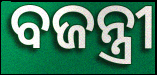
ବଜନ୍ତ୍ରୀ